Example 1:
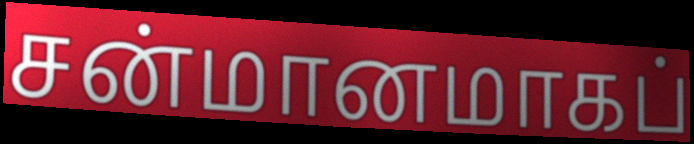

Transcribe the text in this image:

சன்மானமாகப்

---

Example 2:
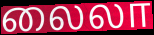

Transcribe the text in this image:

லைலா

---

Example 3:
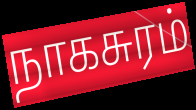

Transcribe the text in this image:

நாகசுரம்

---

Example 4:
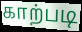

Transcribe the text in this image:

காற்படி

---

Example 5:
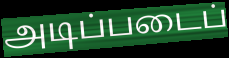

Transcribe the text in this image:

அடிப்படைப்